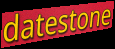
datestone